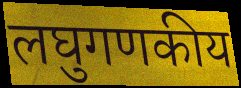
लघुगणकीय